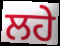
ਲਹੇ